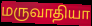
மருவாதியா